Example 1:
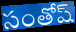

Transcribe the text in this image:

సంతోష్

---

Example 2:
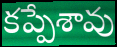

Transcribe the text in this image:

కప్పేశావు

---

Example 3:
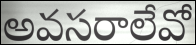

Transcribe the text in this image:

అవసరాలేవో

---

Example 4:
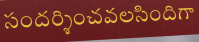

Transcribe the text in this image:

సందర్శించవలసిందిగా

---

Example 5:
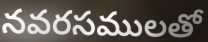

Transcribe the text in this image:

నవరసములతో